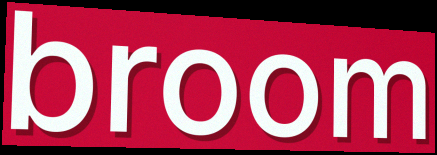
broom